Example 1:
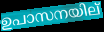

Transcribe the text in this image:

ഉപാസനയില്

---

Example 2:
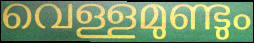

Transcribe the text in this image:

വെള്ളമുണ്ടും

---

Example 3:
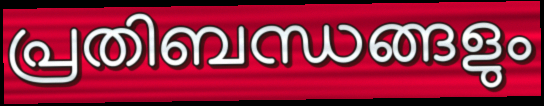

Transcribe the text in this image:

പ്രതിബന്ധങ്ങളും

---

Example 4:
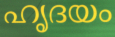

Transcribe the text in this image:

ഹൃദയം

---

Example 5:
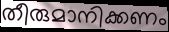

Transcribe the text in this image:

തീരുമാനിക്കണം